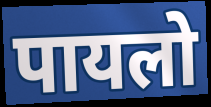
पायलो